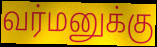
வர்மனுக்கு